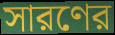
সারণের